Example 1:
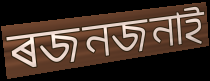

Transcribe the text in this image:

ৰজনজনাই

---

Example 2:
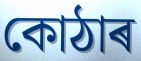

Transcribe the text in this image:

কোঠাৰ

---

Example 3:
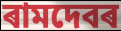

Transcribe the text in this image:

ৰামদেবৰ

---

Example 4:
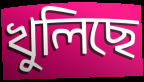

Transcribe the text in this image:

খুলিছে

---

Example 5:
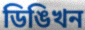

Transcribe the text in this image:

ডিঙিখন